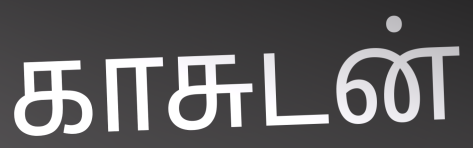
காசுடன்